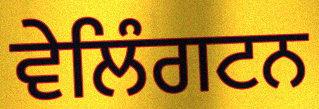
ਵੇਲਿੰਗਟਨ